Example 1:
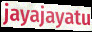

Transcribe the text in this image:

jayajayatu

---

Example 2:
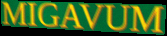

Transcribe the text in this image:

MIGAVUM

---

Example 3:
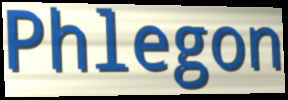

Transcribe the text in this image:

Phlegon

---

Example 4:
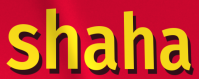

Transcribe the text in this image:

shaha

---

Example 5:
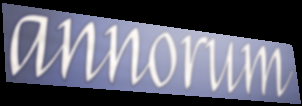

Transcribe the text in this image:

annorum